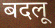
बदलू